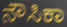
ನೌಸಿಕಾ